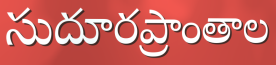
సుదూరప్రాంతాల